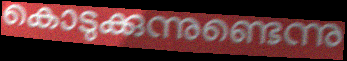
കൊടുക്കുന്നുണ്ടെന്നു